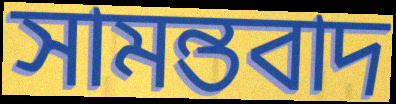
সামন্তবাদ